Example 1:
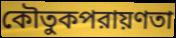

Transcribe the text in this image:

কৌতুকপরায়ণতা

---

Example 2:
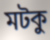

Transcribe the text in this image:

মটকু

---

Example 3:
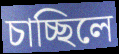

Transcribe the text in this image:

চাচ্ছিলে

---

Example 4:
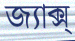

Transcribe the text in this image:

জ্যাক্স্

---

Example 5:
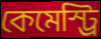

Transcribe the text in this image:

কেমেস্ট্রি